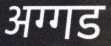
अग्गड